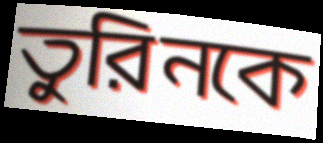
তুরিনকে